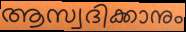
ആസ്വദിക്കാനും